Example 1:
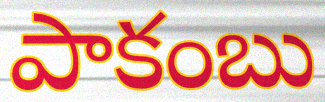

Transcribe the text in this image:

పాకంబు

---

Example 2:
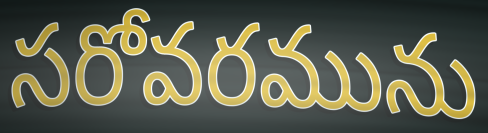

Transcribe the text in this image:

సరోవరమును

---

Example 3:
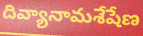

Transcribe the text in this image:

దివ్యానామశేషేణ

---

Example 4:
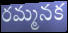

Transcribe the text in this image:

రమ్మనక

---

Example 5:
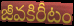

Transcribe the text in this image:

జీవకిరీటం